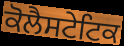
ਕੋਲੈਸਟੇਟਿਕ